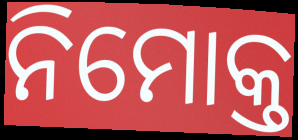
ନିମୋକ୍ତ